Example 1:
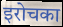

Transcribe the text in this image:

इरोचका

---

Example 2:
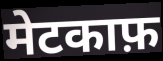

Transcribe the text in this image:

मेटकाफ़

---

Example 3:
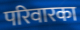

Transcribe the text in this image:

परिवारका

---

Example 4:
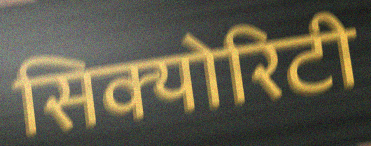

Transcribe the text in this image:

सिक्‍योरिटी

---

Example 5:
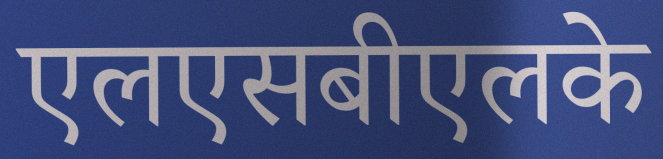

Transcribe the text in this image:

एलएसबीएलके